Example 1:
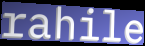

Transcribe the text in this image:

rahile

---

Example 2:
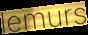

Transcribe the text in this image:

lemurs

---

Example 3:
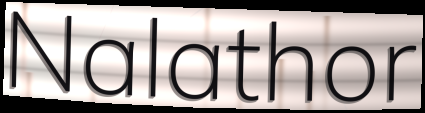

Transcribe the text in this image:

Nalathor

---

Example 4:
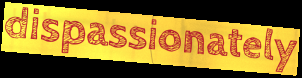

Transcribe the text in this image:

dispassionately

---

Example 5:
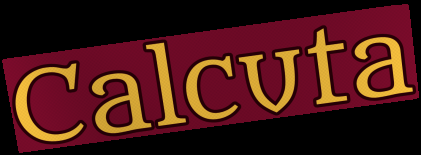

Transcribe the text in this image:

Calcuta